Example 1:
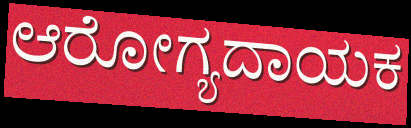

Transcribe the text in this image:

ಆರೋಗ್ಯದಾಯಕ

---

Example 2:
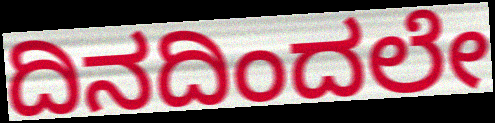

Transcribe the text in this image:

ದಿನದಿಂದಲೇ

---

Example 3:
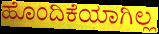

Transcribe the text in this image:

ಹೊಂದಿಕೆಯಾಗಿಲ್ಲ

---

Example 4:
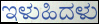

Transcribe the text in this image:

ಇಳುಹಿದಳು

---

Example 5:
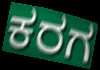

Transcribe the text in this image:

ಕರಗ